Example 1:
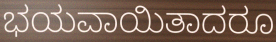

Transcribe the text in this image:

ಭಯವಾಯಿತಾದರೂ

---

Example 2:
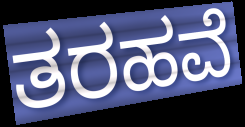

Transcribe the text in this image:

ತರಹವೆ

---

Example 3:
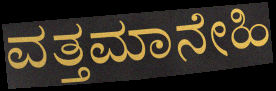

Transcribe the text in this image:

ವತ್ತಮಾನೇಹಿ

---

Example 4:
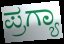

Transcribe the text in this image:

ಪ್ರಗ್ಯಾ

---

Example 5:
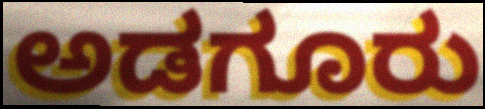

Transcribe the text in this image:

ಅಡಗೂರು